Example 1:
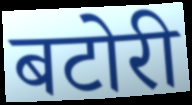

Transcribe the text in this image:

बटोरी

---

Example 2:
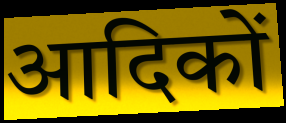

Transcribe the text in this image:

आदिकों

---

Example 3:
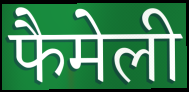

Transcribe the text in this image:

फैमेली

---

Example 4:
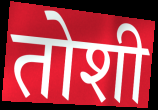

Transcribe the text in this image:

तोशी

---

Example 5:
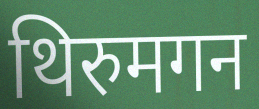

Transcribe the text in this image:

थिरुमगन